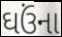
ઘઉંના